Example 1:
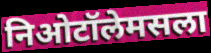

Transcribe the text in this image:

निओटॉलेमसला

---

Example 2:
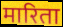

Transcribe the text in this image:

मारिता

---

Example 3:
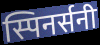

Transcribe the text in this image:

स्पिनर्सनी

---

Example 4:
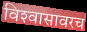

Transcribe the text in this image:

विश्वासावरच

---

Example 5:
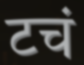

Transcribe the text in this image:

टचं